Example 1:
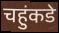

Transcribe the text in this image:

चहुंकडे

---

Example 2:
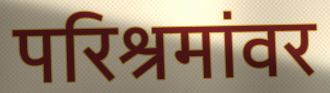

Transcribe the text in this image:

परिश्रमांवर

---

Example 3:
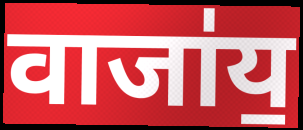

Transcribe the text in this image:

वाजा॑य॒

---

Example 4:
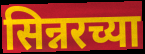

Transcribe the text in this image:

सिन्नरच्या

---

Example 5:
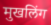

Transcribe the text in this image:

मुखलिंग